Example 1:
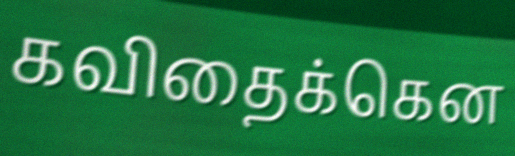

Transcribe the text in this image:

கவிதைக்கென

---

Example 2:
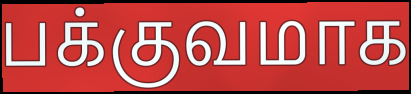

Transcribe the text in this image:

பக்குவமாக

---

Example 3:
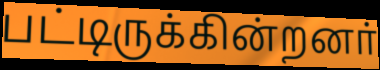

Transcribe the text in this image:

பட்டிருக்கின்றனர்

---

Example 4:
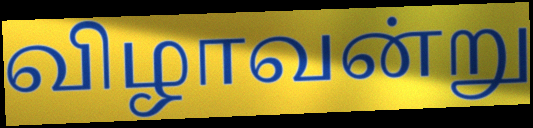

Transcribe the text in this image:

விழாவன்று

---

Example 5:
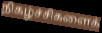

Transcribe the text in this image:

நிகழ்ச்சிகளைக்